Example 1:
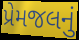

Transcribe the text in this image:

પ્રેમજલનું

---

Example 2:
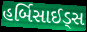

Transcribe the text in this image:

હર્બિસાઈડ્સ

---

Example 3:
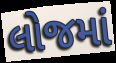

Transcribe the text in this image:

લોજમાં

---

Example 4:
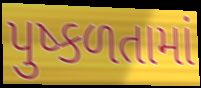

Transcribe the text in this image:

પુષ્કળતામાં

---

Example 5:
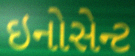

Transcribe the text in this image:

ઇનોસેન્ટ